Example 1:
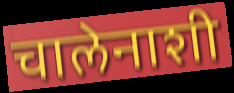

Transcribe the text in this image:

चालेनाशी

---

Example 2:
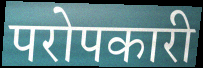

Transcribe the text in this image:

परोपकारी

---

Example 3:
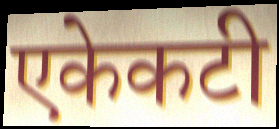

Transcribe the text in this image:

एकेकटी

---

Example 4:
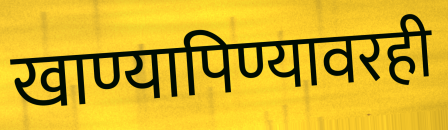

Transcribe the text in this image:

खाण्यापिण्यावरही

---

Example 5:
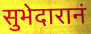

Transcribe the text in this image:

सुभेदारानं